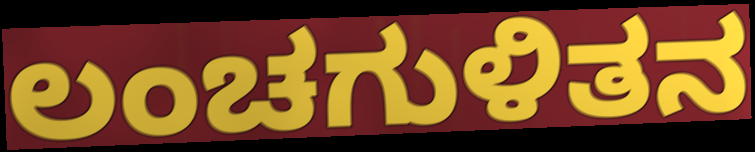
ಲಂಚಗುಳಿತನ